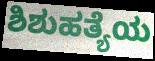
ಶಿಶುಹತ್ಯೆಯ